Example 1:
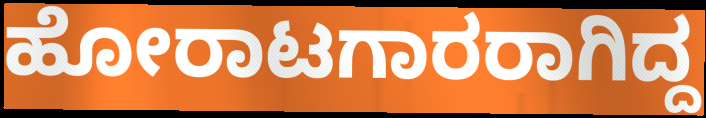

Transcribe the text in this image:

ಹೋರಾಟಗಾರರಾಗಿದ್ದ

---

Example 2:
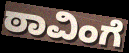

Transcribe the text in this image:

ಠಾವಿಂಗೆ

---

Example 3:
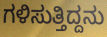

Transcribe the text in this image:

ಗಳಿಸುತ್ತಿದ್ದನು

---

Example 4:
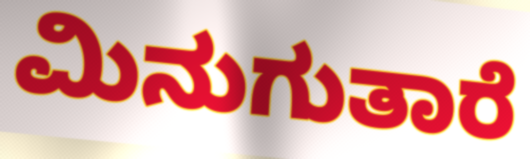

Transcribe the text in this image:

ಮಿನುಗುತಾರೆ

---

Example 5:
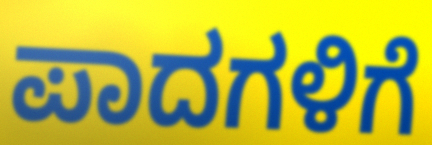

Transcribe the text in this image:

ಪಾದಗಳಿಗೆ